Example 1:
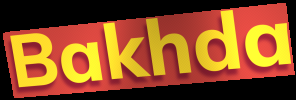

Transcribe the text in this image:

Bakhda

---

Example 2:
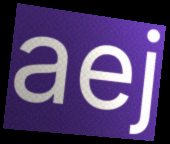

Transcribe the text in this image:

aej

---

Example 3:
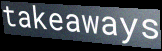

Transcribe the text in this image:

takeaways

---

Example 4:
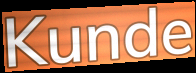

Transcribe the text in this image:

Kunde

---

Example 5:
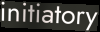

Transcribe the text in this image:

initiatory